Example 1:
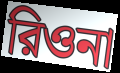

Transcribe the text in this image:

রিওনা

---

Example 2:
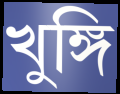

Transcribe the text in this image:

খুঙ্গি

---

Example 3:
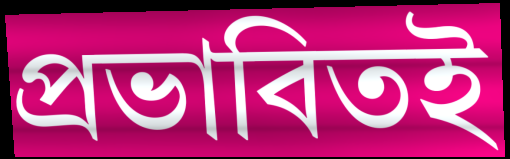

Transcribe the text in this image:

প্রভাবিতই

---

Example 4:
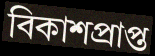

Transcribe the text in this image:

বিকাশপ্রাপ্ত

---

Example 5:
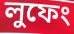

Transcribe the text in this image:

লুফেং